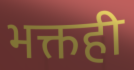
भक्तही